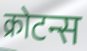
क्रोटन्स